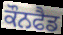
ਕੌਨਫੈਡ